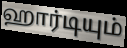
ஹார்டியும்